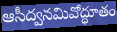
ఆసీద్వనమివోద్ధూతం